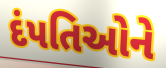
દંપતિઓને